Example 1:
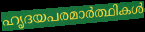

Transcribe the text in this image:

ഹൃദയപരമാർത്ഥികൾ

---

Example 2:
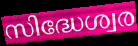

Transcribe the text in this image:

സിദ്ധേശ്വര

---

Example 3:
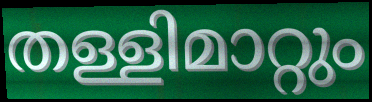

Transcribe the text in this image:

തള്ളിമാറ്റും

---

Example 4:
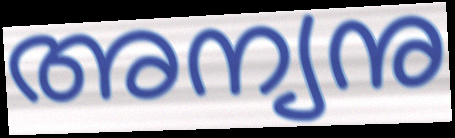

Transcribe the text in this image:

അന്യനു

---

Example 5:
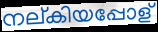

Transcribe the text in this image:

നല്കിയപ്പോള്